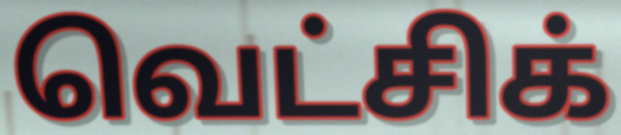
வெட்சிக்